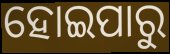
ହୋଇପାରୁ